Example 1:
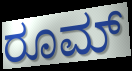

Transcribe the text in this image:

ರೂಮ್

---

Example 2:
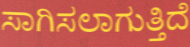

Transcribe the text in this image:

ಸಾಗಿಸಲಾಗುತ್ತಿದೆ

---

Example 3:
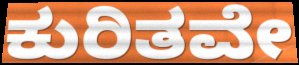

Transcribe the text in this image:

ಕುರಿತವೇ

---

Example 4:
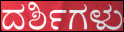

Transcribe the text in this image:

ದರ್ಶಿಗಳು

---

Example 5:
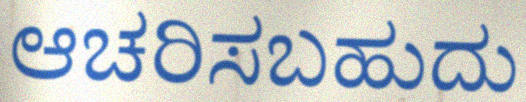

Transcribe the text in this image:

ಆಚರಿಸಬಹುದು